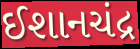
ઈશાનચંદ્ર